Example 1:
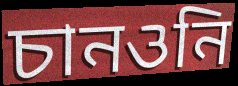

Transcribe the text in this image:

চানওনি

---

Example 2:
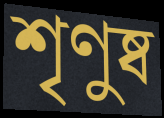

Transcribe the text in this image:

শৃণুষ্ব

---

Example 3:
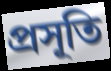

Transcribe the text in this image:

প্রসূতি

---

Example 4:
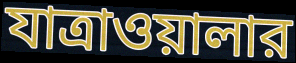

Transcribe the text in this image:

যাত্রাওয়ালার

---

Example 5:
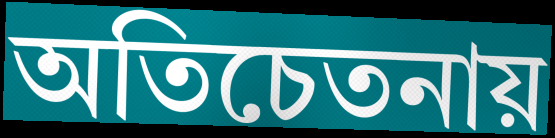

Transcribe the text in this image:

অতিচেতনায়